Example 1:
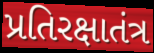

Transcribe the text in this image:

પ્રતિરક્ષાતંત્ર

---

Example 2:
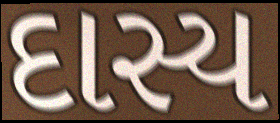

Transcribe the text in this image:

દાસ્ય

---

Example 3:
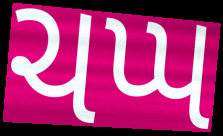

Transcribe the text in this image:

ચપ્પ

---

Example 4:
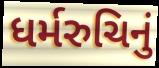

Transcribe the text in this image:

ધર્મરુચિનું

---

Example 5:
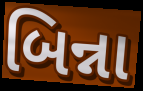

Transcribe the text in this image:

બિન્ના